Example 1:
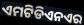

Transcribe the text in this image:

ଏମଟିଡିଏନଏର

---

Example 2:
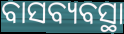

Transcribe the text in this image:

ବାସବ୍ୟବସ୍ଥା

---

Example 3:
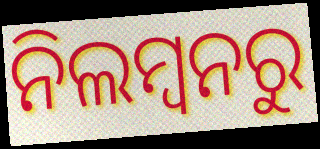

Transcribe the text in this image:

ନିଲମ୍ବନରୁ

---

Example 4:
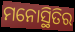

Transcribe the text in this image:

ମନୋସ୍ଥିତିର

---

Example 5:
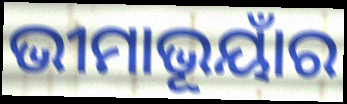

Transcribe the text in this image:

ଭୀମାଭୂୟାଁର